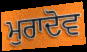
ਮੁਰਾਦੋਵ